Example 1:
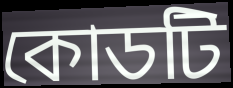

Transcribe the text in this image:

কোডটি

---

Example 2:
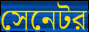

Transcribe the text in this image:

সেনেটর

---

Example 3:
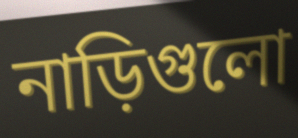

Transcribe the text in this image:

নাড়িগুলো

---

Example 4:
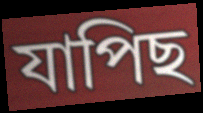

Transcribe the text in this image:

যাপিছ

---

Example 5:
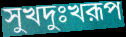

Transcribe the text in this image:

সুখদুঃখরূপ